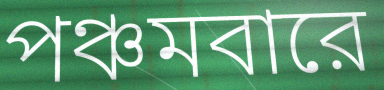
পঞ্চমবারে